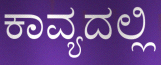
ಕಾವ್ಯದಲ್ಲಿ